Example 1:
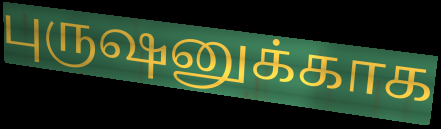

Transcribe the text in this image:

புருஷனுக்காக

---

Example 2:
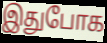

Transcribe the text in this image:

இதுபோக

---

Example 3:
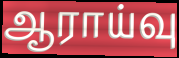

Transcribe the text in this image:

ஆராய்வு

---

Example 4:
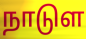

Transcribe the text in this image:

நாடுள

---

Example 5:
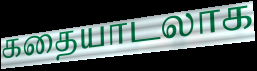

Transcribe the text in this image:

கதையாடலாக